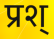
प्रश्